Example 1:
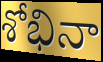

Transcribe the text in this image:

శోభినా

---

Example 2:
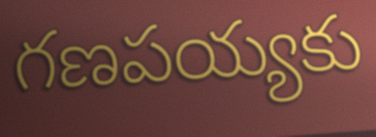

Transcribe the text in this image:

గణపయ్యకు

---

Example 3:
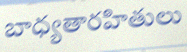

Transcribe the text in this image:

బాధ్యతారహితులు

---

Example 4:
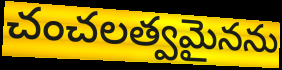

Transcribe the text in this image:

చంచలత్వమైనను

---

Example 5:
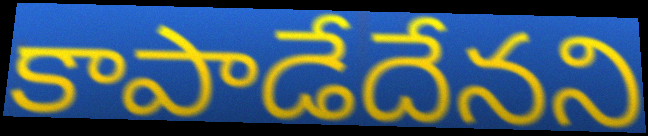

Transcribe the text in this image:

కాపాడేదేనని